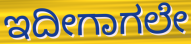
ಇದೀಗಾಗಲೇ